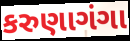
કરુણાગંગા